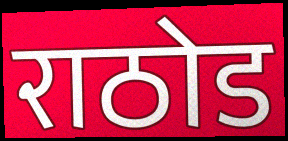
राठोड